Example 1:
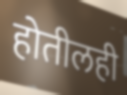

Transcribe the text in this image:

होतीलही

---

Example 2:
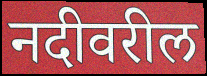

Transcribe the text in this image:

नदीवरील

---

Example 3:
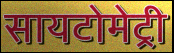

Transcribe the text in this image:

सायटोमेट्री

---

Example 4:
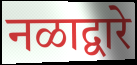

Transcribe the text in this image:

नळाद्वारे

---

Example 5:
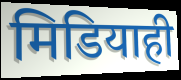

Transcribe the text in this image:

मिडियाही